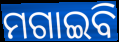
ମଗାଇବି